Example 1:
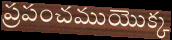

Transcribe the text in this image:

ప్రపంచముయొక్క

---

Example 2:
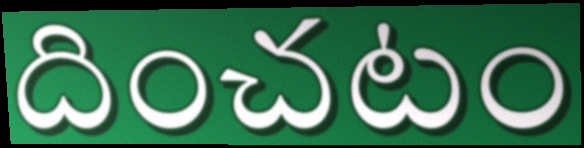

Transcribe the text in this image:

దించటం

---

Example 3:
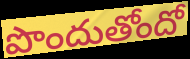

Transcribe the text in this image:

పొందుతోందో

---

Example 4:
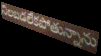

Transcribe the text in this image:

నిలబడలేకపోతున్నాను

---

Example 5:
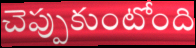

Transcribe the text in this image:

చెప్పుకుంటోంది